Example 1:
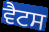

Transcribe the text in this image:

ਵੈਟਸ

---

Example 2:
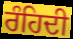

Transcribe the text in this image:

ਰੰਹਿਦੀ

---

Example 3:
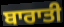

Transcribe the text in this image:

ਬਾਰਾਤੀ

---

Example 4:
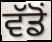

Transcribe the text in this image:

ਵੱਡੋਂ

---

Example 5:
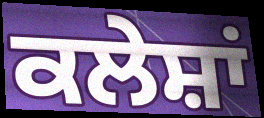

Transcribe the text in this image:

ਕਲੇਸ਼ਾਂ